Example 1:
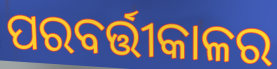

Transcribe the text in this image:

ପରବର୍ତ୍ତୀକାଳର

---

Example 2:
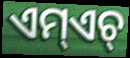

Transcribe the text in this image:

ଏମ୍ଏଚ୍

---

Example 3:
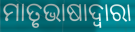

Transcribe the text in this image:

ମାତୃଭାଷାଦ୍ୱାରା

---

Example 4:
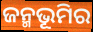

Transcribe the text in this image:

ଜନ୍ମଭୂମିର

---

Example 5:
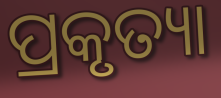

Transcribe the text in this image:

ପ୍ରକୃତ୍ୟା